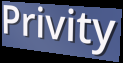
Privity